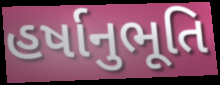
હર્ષાનુભૂતિ